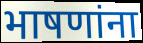
भाषणांना